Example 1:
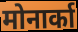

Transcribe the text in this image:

मोनार्का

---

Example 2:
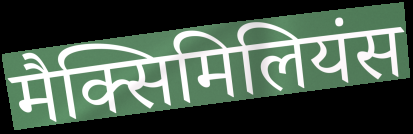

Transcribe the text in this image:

मैक्सिमिलियंस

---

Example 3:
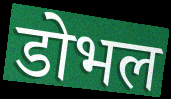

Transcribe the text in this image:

डोभल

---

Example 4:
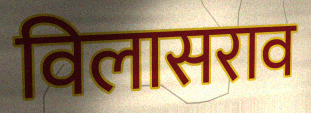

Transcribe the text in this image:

विलासराव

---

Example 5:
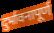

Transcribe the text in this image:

दुर्भावनापूर्ण